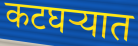
कटघऱ्यात